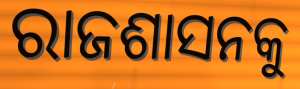
ରାଜଶାସନକୁ